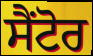
ਸੈਂਟੋਰ